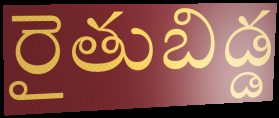
రైతుబిడ్డ